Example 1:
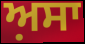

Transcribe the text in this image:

ਅ਼ਸਾ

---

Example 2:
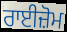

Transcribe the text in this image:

ਰਾਈਜ਼ੋਮ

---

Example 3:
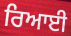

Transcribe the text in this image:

ਰਿਆਈ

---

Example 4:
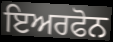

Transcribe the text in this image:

ਇਅਰਫੋਨ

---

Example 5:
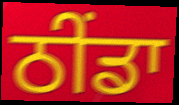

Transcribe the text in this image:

ਠੀਂਡਾ